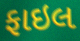
ફાઇલ